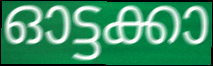
ഓട്ടക്കാ